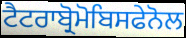
ਟੈਟਰਾਬ੍ਰੋਮੋਬਿਸਫੇਨੋਲ